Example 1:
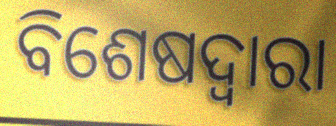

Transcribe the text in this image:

ବିଶେଷଦ୍ଵାରା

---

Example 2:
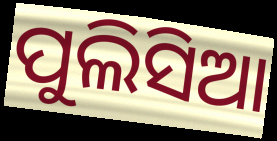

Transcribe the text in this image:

ପୁଲିସିଆ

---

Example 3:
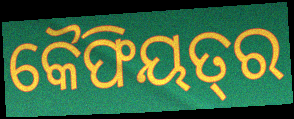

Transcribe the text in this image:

କୈଫିୟତ୍‌ର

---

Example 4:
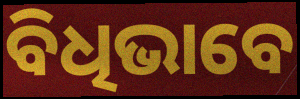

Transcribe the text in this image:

ବିଧିଭାବେ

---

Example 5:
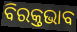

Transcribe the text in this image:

ବିରକ୍ତଭାବ